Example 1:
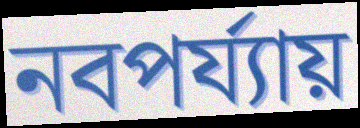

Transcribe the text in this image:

নবপর্য্যায়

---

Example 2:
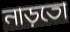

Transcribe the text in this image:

নাড়তো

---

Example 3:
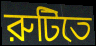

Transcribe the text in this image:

রুটিতে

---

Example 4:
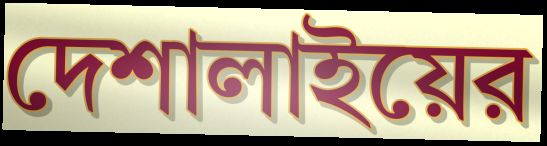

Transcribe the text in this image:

দেশালাইয়ের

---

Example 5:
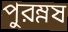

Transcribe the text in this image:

পুরম্নষ